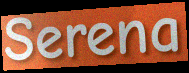
Serena